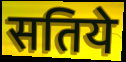
सतिये